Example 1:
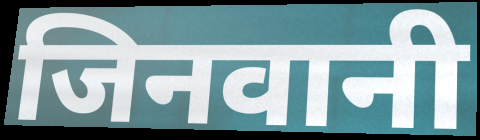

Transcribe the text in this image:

जिनवानी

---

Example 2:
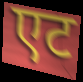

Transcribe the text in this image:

एट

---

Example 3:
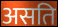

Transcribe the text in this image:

असति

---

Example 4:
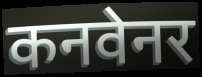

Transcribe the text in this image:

कनवेनर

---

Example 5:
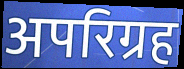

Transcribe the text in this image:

अपरिग्रह